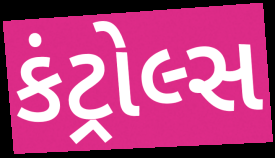
કંટ્રોલ્સ